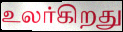
உலர்கிறது